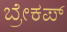
ಬ್ರೇಕಪ್